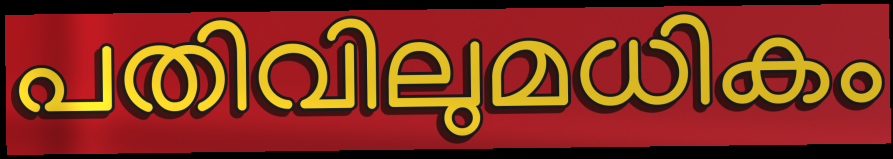
പതിവിലുമധികം